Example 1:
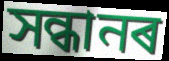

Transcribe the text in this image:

সন্ধানৰ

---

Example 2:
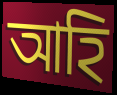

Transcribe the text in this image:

আহি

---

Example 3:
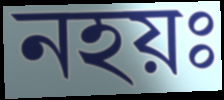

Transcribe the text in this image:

নহয়ঃ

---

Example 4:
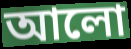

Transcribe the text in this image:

আলো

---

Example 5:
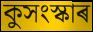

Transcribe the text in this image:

কুসংস্কাৰ